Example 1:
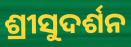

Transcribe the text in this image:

ଶ୍ରୀସୁଦର୍ଶନ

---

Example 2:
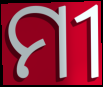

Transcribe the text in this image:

ମୀ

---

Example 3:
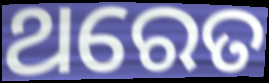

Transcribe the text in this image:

ଥରେତ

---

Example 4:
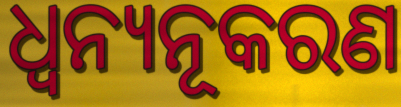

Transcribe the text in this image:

ଧ୍ୱନ୍ୟନୂକରଣ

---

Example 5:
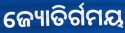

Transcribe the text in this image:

ଜ୍ୟୋତିର୍ଗମୟ